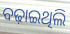
ବଢ଼ାଇଥିଲି